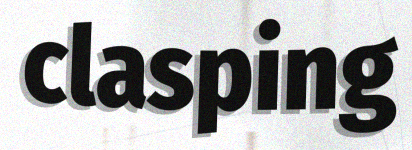
clasping